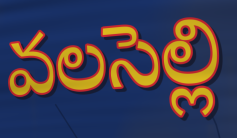
వలసెల్లి